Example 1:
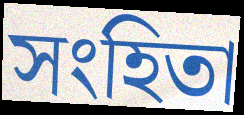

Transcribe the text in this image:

সংহিতা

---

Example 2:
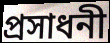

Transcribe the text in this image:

প্রসাধনী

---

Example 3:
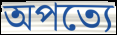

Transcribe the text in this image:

অপত্যে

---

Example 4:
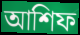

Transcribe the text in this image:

আশিফ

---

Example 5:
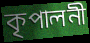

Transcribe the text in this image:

কৃপালনী